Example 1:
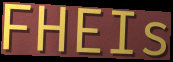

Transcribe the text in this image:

FHEIs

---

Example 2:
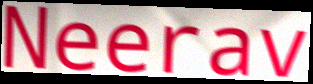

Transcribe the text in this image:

Neerav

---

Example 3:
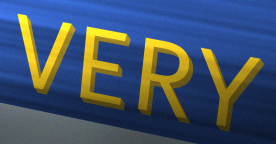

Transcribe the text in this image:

VERY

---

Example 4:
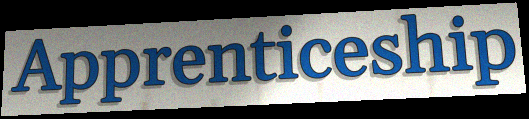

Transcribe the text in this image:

Apprenticeship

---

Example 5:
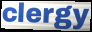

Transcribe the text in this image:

clergy